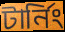
টার্নিং